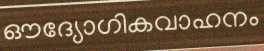
ഔദ്യോഗികവാഹനം